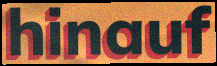
hinauf